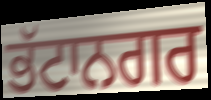
ਭੱਟਾਨਗਰ